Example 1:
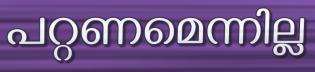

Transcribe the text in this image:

പറ്റണമെന്നില്ല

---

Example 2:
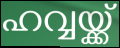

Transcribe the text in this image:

ഹവ്വയ്ക്ക്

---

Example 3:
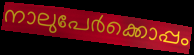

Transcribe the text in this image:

നാലുപേർക്കൊപ്പം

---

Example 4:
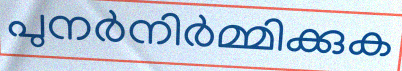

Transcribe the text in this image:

പുനർനിർമ്മിക്കുക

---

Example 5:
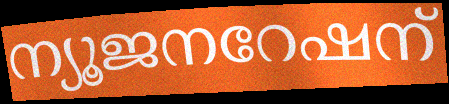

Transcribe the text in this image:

ന്യൂജനറേഷന്